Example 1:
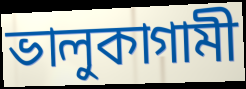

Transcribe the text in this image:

ভালুকাগামী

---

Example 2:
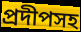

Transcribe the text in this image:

প্রদীপসহ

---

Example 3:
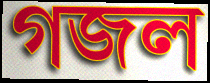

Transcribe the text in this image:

গজল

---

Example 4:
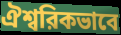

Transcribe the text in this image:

ঐশ্বরিকভাবে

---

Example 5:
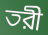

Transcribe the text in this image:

তরী